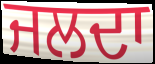
ਜਲਦਾ